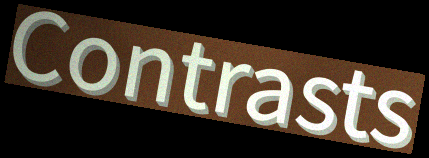
Contrasts